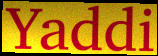
Yaddi